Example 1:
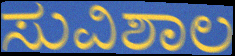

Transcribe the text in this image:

ಸುವಿಶಾಲ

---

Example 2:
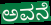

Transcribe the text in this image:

ಅವನೆ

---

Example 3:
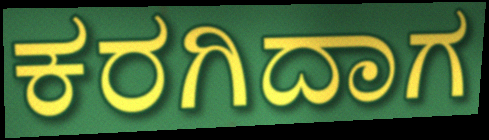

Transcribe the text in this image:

ಕರಗಿದಾಗ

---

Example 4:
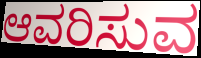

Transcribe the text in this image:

ಆವರಿಸುವ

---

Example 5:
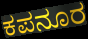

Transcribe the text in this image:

ಕಪನೂರ